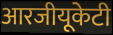
आरजीयूकेटी